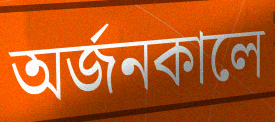
অর্জনকালে